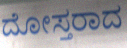
ದೋಸ್ತರಾದ